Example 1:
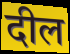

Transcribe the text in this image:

दील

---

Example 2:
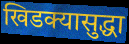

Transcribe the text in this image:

खिडक्यासुद्धा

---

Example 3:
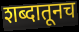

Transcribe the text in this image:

शब्दातूनच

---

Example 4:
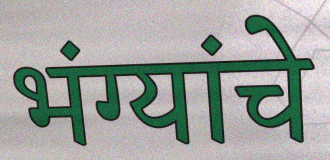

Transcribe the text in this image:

भंग्यांचे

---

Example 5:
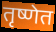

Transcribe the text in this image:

तृष्णेत